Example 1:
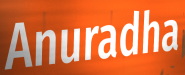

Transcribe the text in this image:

Anuradha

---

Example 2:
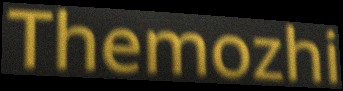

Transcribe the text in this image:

Themozhi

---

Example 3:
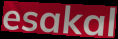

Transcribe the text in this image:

esakal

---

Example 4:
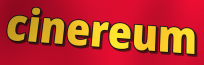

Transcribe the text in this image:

cinereum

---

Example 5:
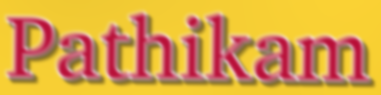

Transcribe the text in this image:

Pathikam